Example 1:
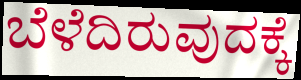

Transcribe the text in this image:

ಬೆಳೆದಿರುವುದಕ್ಕೆ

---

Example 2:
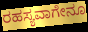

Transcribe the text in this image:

ರಹಸ್ಯವಾಗೇನೂ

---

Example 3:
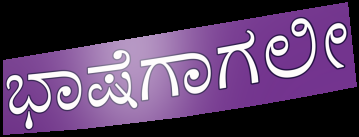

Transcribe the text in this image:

ಭಾಷೆಗಾಗಲೀ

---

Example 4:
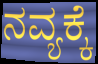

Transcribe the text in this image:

ನವ್ಯಕ್ಕೆ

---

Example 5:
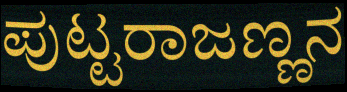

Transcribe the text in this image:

ಪುಟ್ಟರಾಜಣ್ಣನ